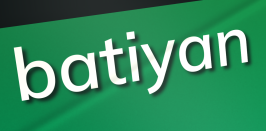
batiyan